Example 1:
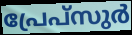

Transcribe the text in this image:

പ്രേപ്സുർ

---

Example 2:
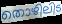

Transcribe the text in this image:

തൊഴിലിട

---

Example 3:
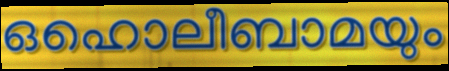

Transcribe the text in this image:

ഒഹൊലീബാമയും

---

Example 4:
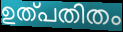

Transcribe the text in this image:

ഉത്പതിതം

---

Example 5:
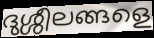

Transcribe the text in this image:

ദുശ്ശീലങ്ങളെ